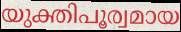
യുക്തിപൂര്വമായ